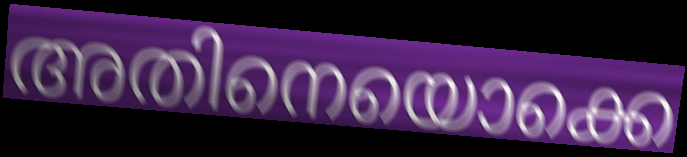
അതിനെയൊക്കെ